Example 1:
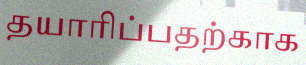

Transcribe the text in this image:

தயாரிப்பதற்காக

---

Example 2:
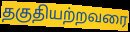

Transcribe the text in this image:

தகுதியற்றவரை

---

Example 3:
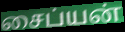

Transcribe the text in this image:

சைப்யன்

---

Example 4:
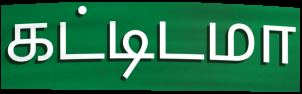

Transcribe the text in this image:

கட்டிடமா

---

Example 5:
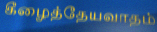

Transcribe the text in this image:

கீழைத்தேயவாதம்